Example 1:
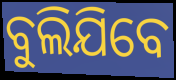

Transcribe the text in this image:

ବୁଲିଯିବେ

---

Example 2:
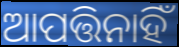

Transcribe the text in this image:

ଆପତ୍ତିନାହିଁ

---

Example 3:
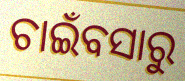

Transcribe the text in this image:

ଚାଇଁବସାରୁ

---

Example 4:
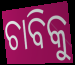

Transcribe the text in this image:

ଚାବିକୁ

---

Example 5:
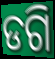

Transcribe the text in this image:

ଡଗି